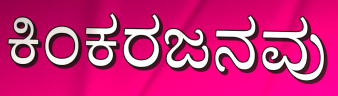
ಕಿಂಕರಜನವು